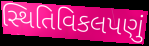
સ્થિતિવિકલપણું